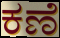
ಕಣೆ